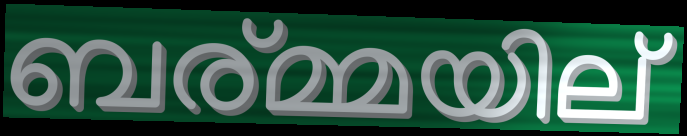
ബര്മ്മയില്